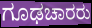
ಗೂಢಚಾರರು